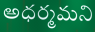
అధర్మమని